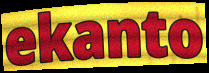
ekanto